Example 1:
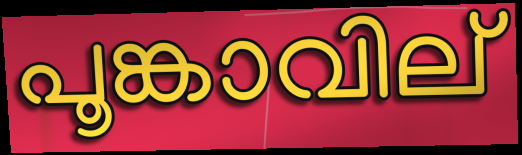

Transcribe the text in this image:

പൂങ്കാവില്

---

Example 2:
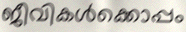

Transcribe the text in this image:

ജീവികൾക്കൊപ്പം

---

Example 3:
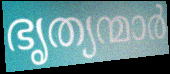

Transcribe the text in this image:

ഭൃത്യന്മാർ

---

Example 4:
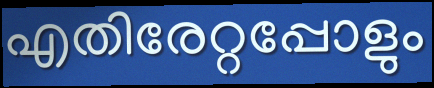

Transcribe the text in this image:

എതിരേറ്റപ്പോളും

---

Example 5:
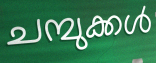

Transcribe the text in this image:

ചമ്പുക്കൾ